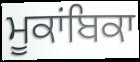
ਮੂਕਾਂਬਿਕਾ